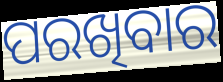
ପରଖିବାର